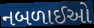
નબળાઈઓ